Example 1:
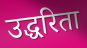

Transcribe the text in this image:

उद्धरिता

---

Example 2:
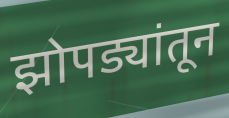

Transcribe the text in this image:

झोपड्यांतून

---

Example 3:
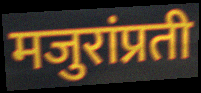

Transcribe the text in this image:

मजुरांप्रती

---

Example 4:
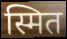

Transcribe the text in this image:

स्मित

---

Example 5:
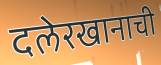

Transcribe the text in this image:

दलेरखानाची